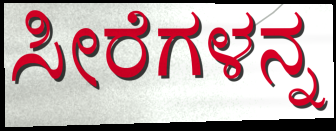
ಸೀರೆಗಳನ್ನ